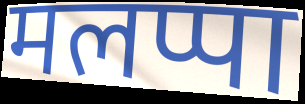
मलप्पा